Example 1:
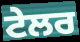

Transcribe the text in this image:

ਟੇਲਰ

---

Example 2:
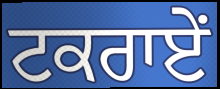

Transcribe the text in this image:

ਟਕਰਾਏਂ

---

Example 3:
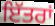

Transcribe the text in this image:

ਇੱਤਰਾਂ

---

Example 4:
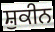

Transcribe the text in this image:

ਸ਼ੁਕੀਨ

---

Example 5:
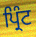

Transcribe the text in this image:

ਪ੍ਰਿੰਟ